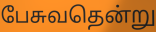
பேசுவதென்று